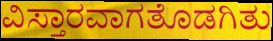
ವಿಸ್ತಾರವಾಗತೊಡಗಿತು